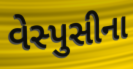
વેસ્પુસીના